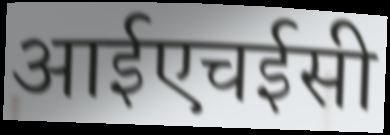
आईएचईसी